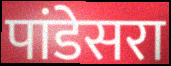
पांडेसरा